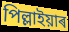
পিল্লাইয়াৰ